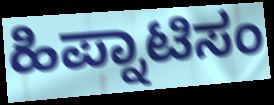
ಹಿಪ್ನಾಟಿಸಂ